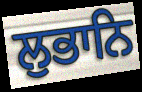
ਲੁਭਾਨਿ